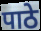
पाठे